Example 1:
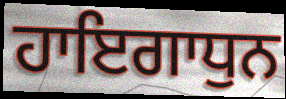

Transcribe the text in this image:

ਹਾਇਗਾਧੁਨ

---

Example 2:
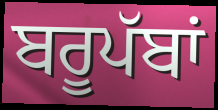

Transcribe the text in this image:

ਬਰੂਪੱਬਾਂ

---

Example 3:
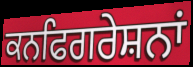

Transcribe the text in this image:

ਕਨਫਿਗਰੇਸ਼ਨਾਂ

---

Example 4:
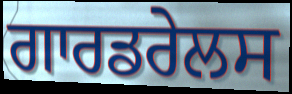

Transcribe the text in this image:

ਗਾਰਡਰੇਲਸ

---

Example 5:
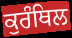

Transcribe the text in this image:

ਕੁਰੰਥਿਲ